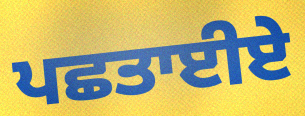
ਪਛਤਾਈਏ